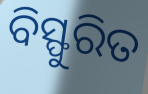
ବିସ୍ଫୁରିତ